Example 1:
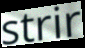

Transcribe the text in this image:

strir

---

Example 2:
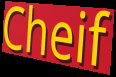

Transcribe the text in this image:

Cheif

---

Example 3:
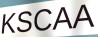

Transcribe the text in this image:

KSCAA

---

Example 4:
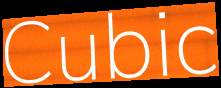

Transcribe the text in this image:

Cubic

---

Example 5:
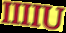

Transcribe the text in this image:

IIIIU